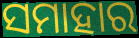
ସମାହାର